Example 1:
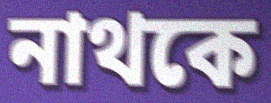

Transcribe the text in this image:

নাথকে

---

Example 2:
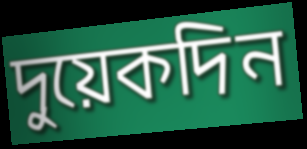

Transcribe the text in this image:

দুয়েকদিন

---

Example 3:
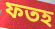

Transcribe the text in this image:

ফতহ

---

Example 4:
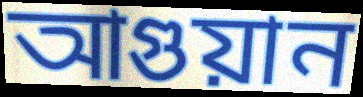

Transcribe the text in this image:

আগুয়ান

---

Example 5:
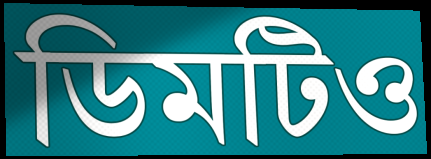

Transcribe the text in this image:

ডিমটিও